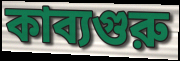
কাব্যগুরু